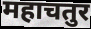
महाचतुर